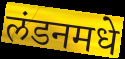
लंडनमधे